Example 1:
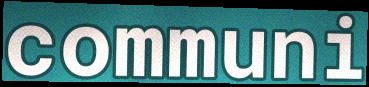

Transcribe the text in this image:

communi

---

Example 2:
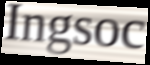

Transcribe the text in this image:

Ingsoc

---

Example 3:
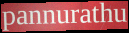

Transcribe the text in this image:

pannurathu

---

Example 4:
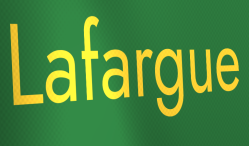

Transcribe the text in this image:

Lafargue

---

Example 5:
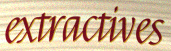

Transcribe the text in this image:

extractives